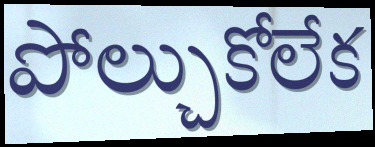
పోల్చుకోలేక